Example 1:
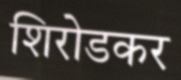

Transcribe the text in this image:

शिरोडकर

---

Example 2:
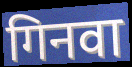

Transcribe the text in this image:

गिनवा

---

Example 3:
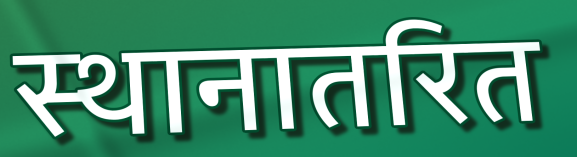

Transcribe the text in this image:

स्थानातरित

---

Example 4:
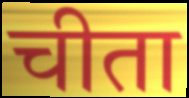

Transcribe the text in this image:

चीता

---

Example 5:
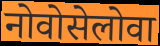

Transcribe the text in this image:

नोवोसेलोवा